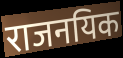
राजनयिक